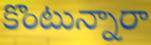
కొంటున్నారా